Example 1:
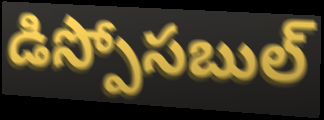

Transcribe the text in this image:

డిస్పోసబుల్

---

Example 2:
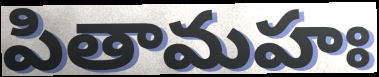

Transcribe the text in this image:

పితామహః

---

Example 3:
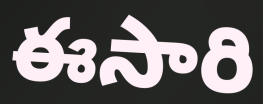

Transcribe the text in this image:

ఈసారి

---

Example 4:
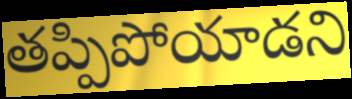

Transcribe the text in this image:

తప్పిపోయాడని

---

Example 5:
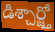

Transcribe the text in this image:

డిశ్చార్జ్తో